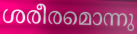
ശരീരമൊന്നു